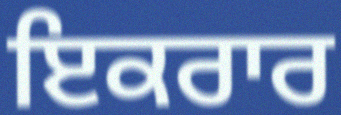
ਇਕਰਾਰ